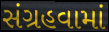
સંગ્રહવામાં